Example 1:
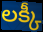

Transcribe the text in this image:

లక్కీ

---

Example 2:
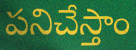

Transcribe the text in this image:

పనిచేస్తాం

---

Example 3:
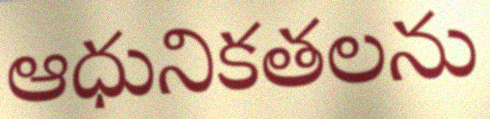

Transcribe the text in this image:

ఆధునికతలను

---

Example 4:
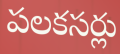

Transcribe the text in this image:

పలకసర్లు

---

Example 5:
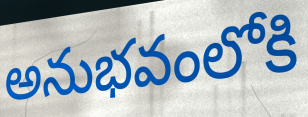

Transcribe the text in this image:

అనుభవంలోకి